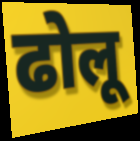
ढोलू